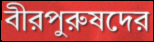
বীরপুরুষদের